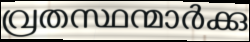
വ്രതസ്ഥന്മാർക്കു